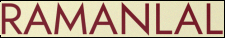
RAMANLAL